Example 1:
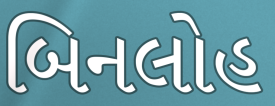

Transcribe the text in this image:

બિનલોહ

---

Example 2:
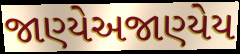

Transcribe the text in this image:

જાણ્યેઅજાણ્યેય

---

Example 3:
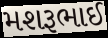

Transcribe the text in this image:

મશરૂભાઈ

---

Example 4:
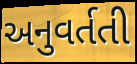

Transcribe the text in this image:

અનુવર્તતી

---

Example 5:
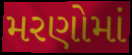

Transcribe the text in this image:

મરણોમાં